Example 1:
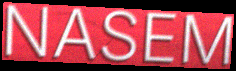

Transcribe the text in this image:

NASEM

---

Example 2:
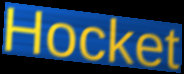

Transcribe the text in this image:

Hocket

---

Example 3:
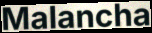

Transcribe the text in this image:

Malancha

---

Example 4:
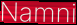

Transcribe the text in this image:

Namni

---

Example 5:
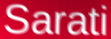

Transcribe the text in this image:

Sarati